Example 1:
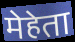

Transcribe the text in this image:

मेहेता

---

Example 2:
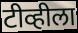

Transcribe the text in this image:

टीव्हीला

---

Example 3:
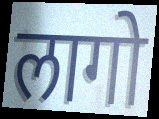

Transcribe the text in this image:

लागो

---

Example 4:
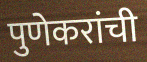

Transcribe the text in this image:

पुणेकरांची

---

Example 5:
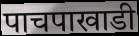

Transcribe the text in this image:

पाचपाखाडी